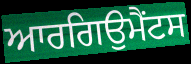
ਆਰਗਿਉਮੈਂਟਸ